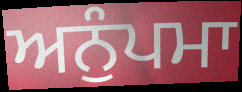
ਅਨੁੰਪਮਾ